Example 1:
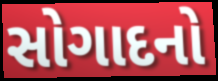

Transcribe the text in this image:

સોગાદનો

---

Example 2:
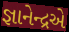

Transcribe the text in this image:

જ્ઞાનેન્દ્રએ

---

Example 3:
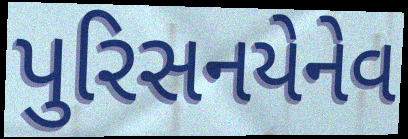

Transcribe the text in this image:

પુરિસનયેનેવ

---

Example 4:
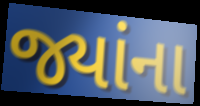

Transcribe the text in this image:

જ્યાંના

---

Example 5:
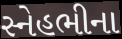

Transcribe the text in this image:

સ્નેહભીના